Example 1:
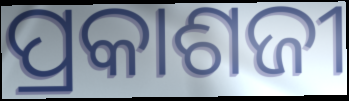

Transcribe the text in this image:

ପ୍ରକାଶଜୀ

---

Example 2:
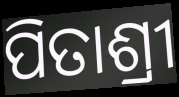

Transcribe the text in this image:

ପିତାଶ୍ରୀ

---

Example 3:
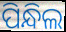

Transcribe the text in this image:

ପିନ୍ଧିଲ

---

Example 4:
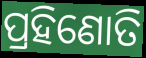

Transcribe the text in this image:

ପ୍ରହିଣୋତି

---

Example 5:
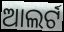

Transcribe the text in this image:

ଆଲର୍ଟ